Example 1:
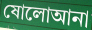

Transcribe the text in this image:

ষোলোআনা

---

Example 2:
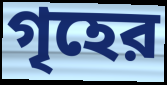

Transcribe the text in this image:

গৃহের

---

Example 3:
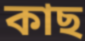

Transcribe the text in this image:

কাছ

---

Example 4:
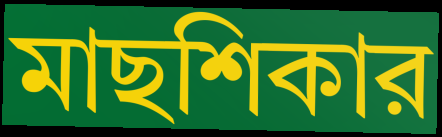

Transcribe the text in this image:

মাছশিকার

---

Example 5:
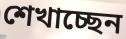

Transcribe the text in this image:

শেখাচ্ছেন